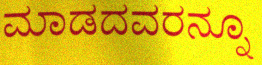
ಮಾಡದವರನ್ನೂ